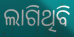
ଲାଗିଥିବି